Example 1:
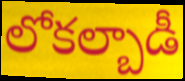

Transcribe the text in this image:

లోకల్బాడీ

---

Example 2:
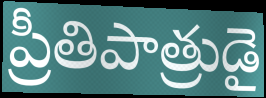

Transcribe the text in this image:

ప్రీతిపాత్రుడై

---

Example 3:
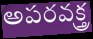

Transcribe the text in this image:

అపరవక్త్ర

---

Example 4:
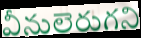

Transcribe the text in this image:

వీనులెరుగని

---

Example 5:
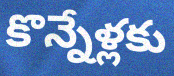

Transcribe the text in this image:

కొన్నేళ్లకు